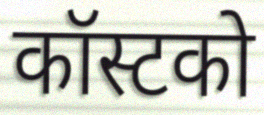
कॉस्टको